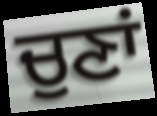
ਚੁਣਾਂ